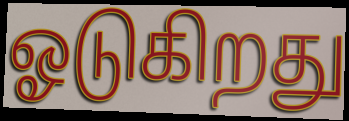
ஓடுகிறது